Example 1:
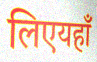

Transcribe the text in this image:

लिएयहाँ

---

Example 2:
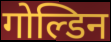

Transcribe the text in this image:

गोल्डिन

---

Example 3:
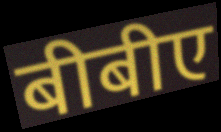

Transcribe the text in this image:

बीबीए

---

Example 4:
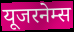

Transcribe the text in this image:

यूजरनेम्स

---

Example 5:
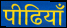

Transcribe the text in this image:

पीढियाँ